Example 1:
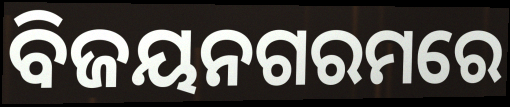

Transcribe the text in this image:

ବିଜୟନଗରମରେ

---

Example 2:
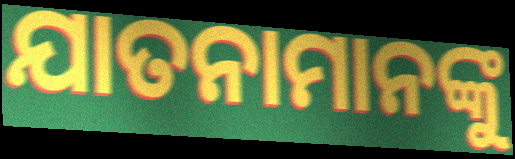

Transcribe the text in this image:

ଯାତନାମାନଙ୍କୁ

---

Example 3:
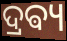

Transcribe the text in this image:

ଦ୍ରଵ୍ୟ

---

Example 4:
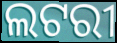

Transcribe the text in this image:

ଲଟରୀ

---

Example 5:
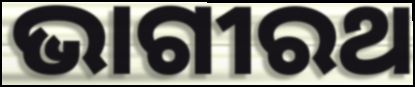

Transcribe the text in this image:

ଭାଗୀରଥ